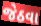
જેઠવા